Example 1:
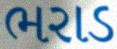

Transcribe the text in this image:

ભરાડ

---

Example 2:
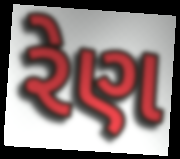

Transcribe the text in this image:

રેણ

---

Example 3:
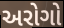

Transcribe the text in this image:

અરોગો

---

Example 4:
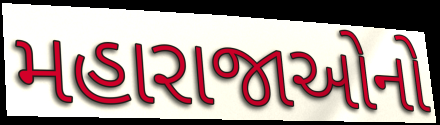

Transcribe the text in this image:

મહારાજાઓનો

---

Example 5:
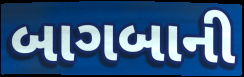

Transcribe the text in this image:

બાગબાની